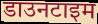
डाउनटाइम